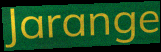
Jarange